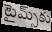
టైమ్స్‌కు